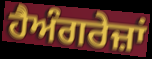
ਹੈਅੰਗਰੇਜ਼ਾਂ